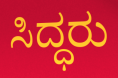
ಸಿದ್ಧರು